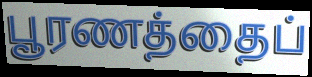
பூரணத்தைப்